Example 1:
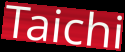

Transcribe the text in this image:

Taichi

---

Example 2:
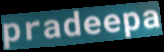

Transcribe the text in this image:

pradeepa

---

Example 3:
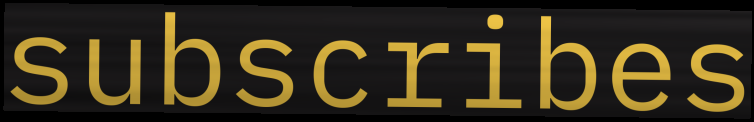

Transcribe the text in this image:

subscribes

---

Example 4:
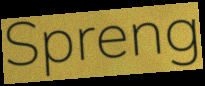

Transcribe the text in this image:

Spreng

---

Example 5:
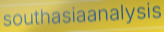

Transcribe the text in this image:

southasiaanalysis